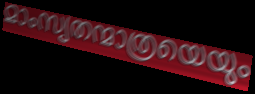
മാംസ്യതന്മാത്രയെയും